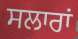
ਸਲਾਰਾਂ